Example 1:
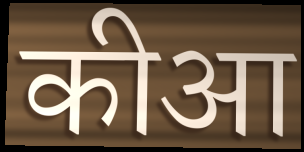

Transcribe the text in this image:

कीआ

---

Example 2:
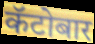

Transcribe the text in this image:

कॅटोबार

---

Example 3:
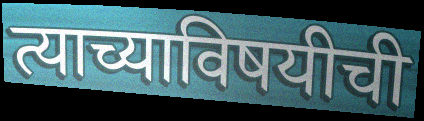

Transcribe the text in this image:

त्याच्याविषयीची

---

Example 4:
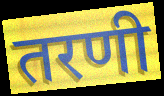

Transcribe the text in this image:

तरणी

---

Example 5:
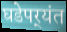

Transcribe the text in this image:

घडेपर्यंत